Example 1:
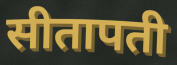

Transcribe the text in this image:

सीतापती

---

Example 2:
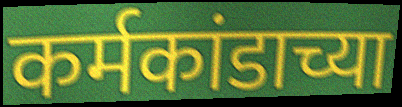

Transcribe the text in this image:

कर्मकांडाच्या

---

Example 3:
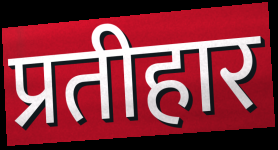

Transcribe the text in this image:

प्रतीहार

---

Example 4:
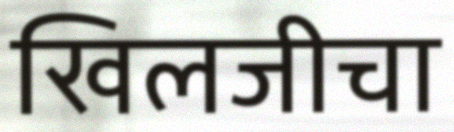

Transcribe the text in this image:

खिलजीचा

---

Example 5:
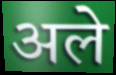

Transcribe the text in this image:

अले